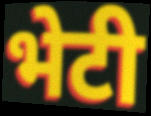
भेटी